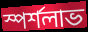
স্পর্শলাভ